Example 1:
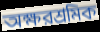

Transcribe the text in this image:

অক্ষরশ্রমিক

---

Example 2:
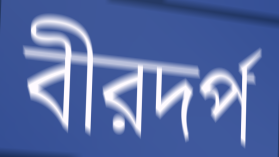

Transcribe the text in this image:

বীরদর্প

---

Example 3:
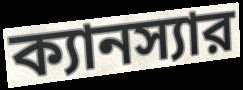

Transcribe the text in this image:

ক্যানস্যার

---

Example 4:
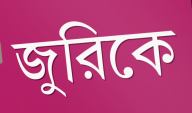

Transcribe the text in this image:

জুরিকে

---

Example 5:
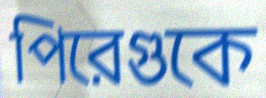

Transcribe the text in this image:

পিরেগুকে